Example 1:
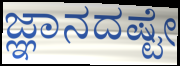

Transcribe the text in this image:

ಜ್ಞಾನದಷ್ಟೇ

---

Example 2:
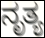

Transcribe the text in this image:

ನೃತ್ಯ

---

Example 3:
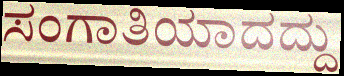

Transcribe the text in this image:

ಸಂಗಾತಿಯಾದದ್ದು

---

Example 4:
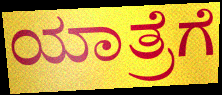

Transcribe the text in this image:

ಯಾತ್ರೆಗೆ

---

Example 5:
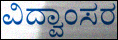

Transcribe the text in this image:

ವಿದ್ವಾಂಸರ